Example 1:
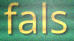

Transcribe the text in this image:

fals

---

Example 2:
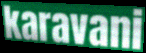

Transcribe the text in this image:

karavani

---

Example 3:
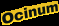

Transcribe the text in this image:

Ocinum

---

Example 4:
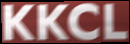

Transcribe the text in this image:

KKCL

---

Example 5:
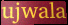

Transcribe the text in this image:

ujwala